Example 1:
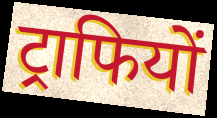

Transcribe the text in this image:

ट्राफियों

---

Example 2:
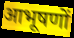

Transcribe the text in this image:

आभूषणों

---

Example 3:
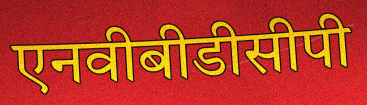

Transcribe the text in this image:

एनवीबीडीसीपी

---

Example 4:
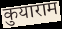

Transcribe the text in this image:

कुयाराम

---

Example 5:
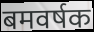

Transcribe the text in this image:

बमवर्षक